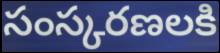
సంస్కరణలకి